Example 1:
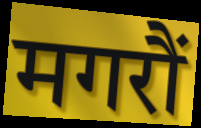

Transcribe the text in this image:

मगरौं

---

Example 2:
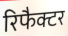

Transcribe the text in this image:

रिफैक्टर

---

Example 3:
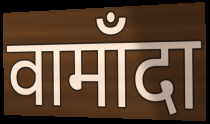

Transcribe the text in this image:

वामाँदा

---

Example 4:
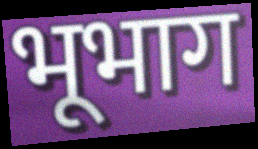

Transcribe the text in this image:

भूभाग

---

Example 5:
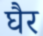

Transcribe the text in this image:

घैर